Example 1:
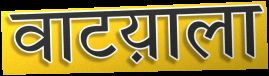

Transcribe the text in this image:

वाटय़ाला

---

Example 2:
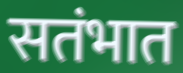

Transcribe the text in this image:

सतंभात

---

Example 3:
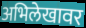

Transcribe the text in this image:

अभिलेखावर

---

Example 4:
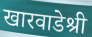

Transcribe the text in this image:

खारवाडेश्री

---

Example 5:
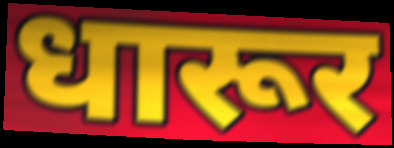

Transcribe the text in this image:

धारूर